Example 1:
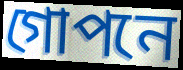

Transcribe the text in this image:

গোপনে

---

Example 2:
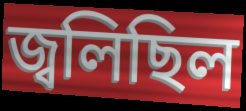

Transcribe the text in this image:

জ্বলিছিল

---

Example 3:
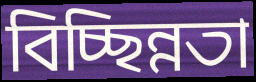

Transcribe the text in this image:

বিচ্ছিন্নতা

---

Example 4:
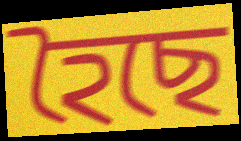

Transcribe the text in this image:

হৈছে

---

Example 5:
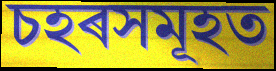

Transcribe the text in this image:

চহৰসমূহত